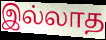
இல்லாத